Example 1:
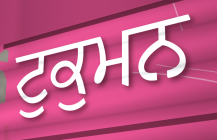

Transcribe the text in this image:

ਟੁਕੁਮਨ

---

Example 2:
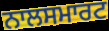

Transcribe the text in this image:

ਨਾਲਸਮਾਰਟ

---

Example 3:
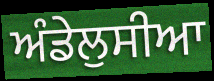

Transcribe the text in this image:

ਅੰਡੇਲੁਸੀਆ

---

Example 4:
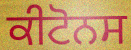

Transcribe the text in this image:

ਕੀਟੋਨਸ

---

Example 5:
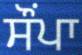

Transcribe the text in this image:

ਸੌਂਪਾ